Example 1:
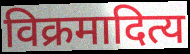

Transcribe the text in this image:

विक्रमादित्य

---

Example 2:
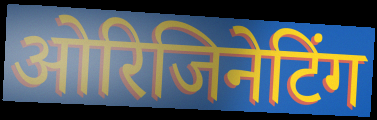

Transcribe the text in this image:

ओरिजिनेटिंग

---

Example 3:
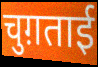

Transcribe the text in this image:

चुग़ताई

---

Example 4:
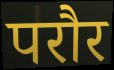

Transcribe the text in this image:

परौर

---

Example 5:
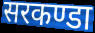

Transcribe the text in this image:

सरकण्डा